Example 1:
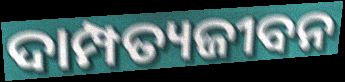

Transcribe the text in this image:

ଦାମ୍ପତ୍ୟଜୀବନ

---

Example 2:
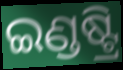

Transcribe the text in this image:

ଇଣ୍ଡଷ୍ଟ୍ରି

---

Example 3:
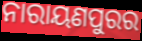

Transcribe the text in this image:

ନାରାୟଣପୁରର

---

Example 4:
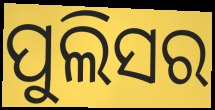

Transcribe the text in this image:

ପୁଲିସର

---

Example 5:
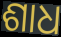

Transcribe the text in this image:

ଶାଧ